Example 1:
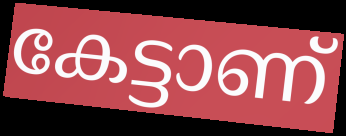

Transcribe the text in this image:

കേട്ടാണ്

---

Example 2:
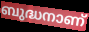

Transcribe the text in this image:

ബുദ്ധനാണ്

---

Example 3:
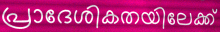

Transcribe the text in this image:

പ്രാദേശികതയിലേക്ക്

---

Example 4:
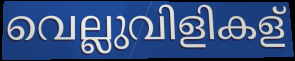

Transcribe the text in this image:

വെല്ലുവിളികള്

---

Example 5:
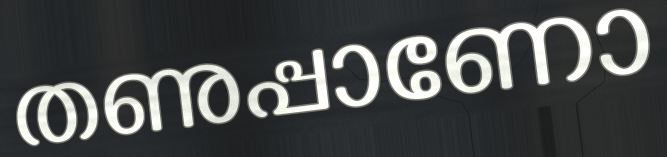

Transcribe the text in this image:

തണുപ്പാണോ